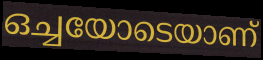
ഒച്ചയോടെയാണ്